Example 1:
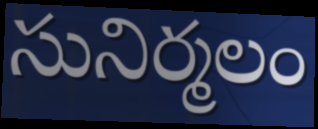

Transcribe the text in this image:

సునిర్మలం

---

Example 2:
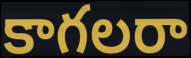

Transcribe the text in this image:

కాగలరా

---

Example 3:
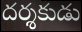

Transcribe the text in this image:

దర్శకుడు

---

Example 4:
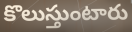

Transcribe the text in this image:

కొలుస్తుంటారు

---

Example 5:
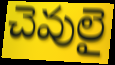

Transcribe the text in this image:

చెవులై